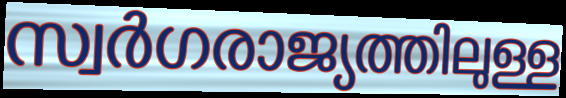
സ്വർഗരാജ്യത്തിലുള്ള